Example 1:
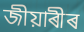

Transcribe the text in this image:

জীয়াৰীৰ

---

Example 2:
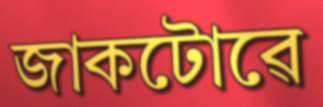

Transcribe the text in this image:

জাকটোৱে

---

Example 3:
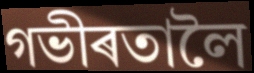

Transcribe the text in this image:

গভীৰতালৈ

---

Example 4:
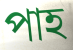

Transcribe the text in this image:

পাহ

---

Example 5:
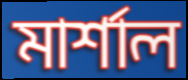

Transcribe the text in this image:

মাৰ্শাল